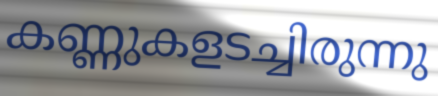
കണ്ണുകളടച്ചിരുന്നു